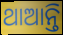
ଥାଆନ୍ତି